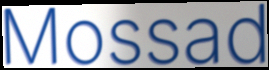
Mossad